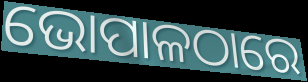
ଭୋପାଳଠାରେ